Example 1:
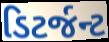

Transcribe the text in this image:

ડિટર્જન્ટ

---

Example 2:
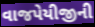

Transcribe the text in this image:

વાજપેયીજીની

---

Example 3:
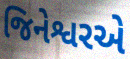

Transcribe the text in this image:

જિનેશ્વરએ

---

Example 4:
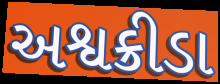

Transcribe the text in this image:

અશ્વક્રીડા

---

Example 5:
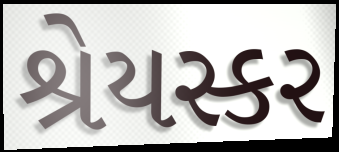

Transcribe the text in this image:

શ્રેયસ્કર